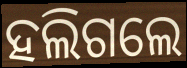
ହଲିଗଲେ